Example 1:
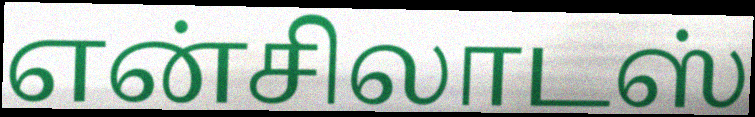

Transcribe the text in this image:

என்சிலாடஸ்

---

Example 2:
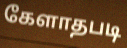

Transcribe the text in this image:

கேளாதபடி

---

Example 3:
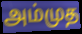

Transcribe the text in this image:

அம்முத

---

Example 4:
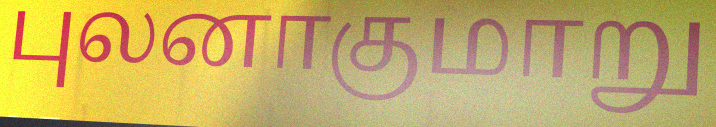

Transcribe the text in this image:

புலனாகுமாறு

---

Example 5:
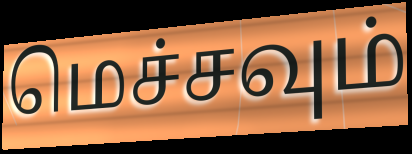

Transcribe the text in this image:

மெச்சவும்